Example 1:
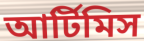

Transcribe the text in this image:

আর্টিমিস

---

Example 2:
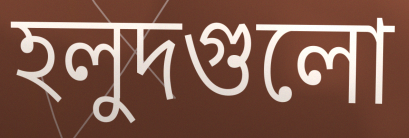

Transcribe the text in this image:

হলুদগুলো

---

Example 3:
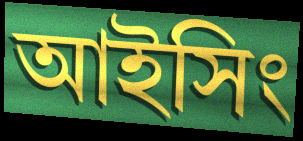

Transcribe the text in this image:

আইসিং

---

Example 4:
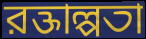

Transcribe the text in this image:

রক্তাল্পতা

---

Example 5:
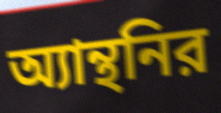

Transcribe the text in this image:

অ্যান্থনির